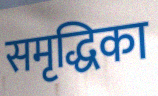
समृद्धिका